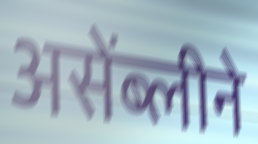
असेंब्लीने